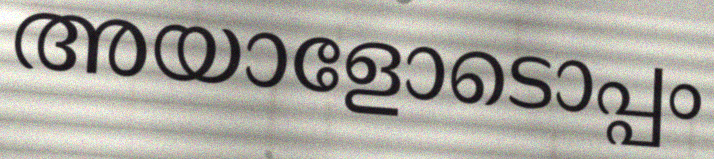
അയാളോടൊപ്പം